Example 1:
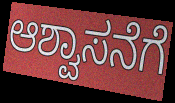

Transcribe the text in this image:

ಆಶ್ವಾಸನೆಗೆ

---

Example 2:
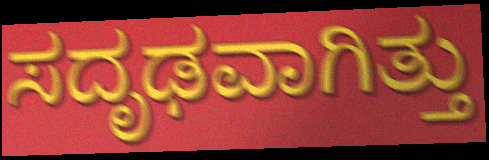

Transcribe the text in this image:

ಸದೃಢವಾಗಿತ್ತು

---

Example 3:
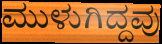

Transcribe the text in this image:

ಮುಳುಗಿದ್ದವು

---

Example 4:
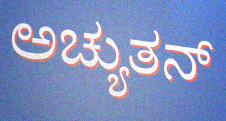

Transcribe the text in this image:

ಅಚ್ಯುತನ್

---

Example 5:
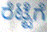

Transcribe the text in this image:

ರೆಟ್ಟೆಗೆ